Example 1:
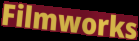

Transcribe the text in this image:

Filmworks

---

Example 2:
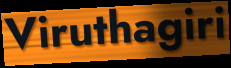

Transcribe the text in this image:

Viruthagiri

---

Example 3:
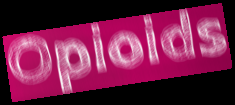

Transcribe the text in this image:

Opioids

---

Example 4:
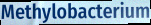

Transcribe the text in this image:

Methylobacterium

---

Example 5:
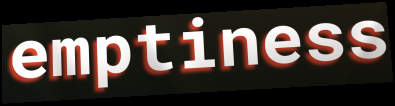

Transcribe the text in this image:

emptiness